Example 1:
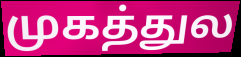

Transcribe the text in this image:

முகத்துல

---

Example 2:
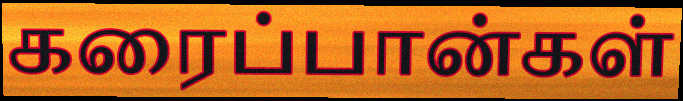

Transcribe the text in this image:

கரைப்பான்கள்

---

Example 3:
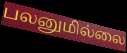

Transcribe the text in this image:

பலனுமில்லை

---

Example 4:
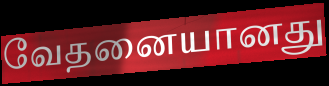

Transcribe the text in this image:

வேதனையானது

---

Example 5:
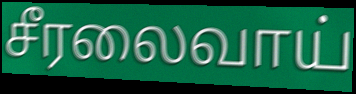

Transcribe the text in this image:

சீரலைவாய்